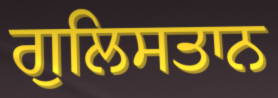
ਗੁਲਿਸਤਾਨ